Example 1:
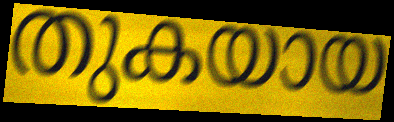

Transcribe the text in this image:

തുകയായ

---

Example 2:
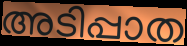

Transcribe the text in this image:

അടിപ്പാത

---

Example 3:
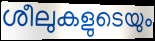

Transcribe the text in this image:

ശീലുകളുടെയും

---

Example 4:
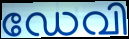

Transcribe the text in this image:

ഡേവി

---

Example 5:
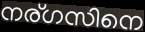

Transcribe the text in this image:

നര്ഗസിനെ